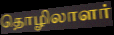
தொழிலாளர்